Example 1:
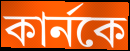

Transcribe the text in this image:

কার্নকে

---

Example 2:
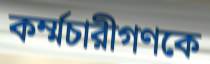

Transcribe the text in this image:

কর্ম্মচারীগণকে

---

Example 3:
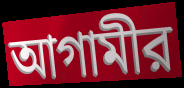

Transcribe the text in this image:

আগামীর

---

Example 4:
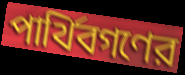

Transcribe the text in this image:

পার্থিবগণের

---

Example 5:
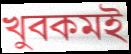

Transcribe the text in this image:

খুবকমই